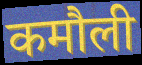
कमौली